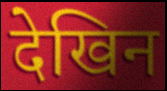
देखिन